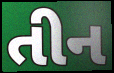
તીન